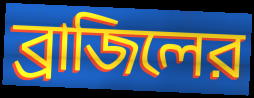
ব্রাজিলের